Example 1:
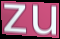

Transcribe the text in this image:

zu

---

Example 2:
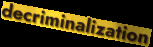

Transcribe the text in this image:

decriminalization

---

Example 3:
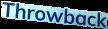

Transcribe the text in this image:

Throwback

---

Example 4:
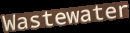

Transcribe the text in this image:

Wastewater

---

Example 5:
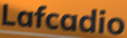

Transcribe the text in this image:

Lafcadio